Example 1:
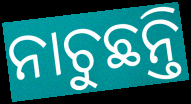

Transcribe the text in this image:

ନାଚୁଛନ୍ତି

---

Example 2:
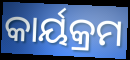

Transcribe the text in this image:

କାର୍ୟକ୍ରମ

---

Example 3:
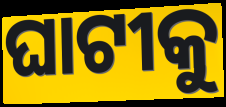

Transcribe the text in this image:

ଘାଟୀକୁ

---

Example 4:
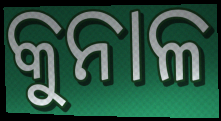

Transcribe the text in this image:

କୁନାଳ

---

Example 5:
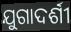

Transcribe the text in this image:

ଯୁଗାଦର୍ଶୀ